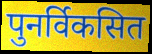
पुनर्विकसित